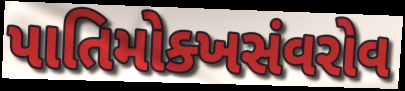
પાતિમોક્ખસંવરોવ